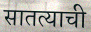
सातत्याची